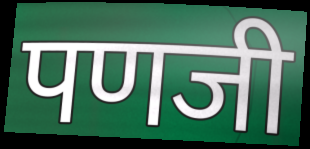
पणजी